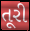
તૂરી